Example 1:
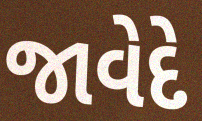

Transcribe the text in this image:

જાવેદે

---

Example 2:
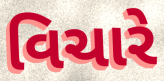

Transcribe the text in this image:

વિચારે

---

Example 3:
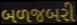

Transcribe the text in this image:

બળજબરી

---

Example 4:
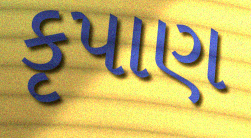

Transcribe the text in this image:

કૃપાણ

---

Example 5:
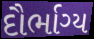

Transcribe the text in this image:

દૌર્ભાગ્ય